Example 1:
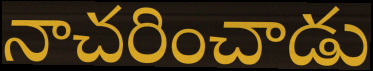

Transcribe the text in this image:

నాచరించాడు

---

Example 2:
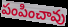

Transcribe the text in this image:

పంపించావు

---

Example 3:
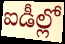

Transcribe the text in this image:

ఐడీల్లో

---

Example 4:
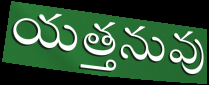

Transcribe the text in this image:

యత్తనువు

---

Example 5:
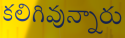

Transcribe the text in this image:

కలిగివున్నారు